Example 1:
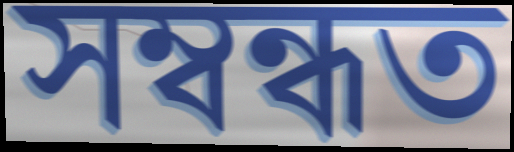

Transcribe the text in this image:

সম্বন্ধত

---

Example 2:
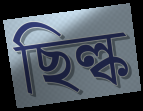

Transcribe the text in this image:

ছিল্ক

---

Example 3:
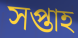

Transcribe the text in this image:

সপ্তাহ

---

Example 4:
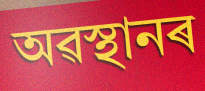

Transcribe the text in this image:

অৱস্থানৰ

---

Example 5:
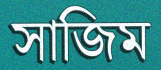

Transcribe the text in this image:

সাজিম